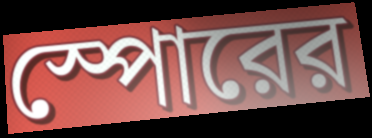
স্পোরের